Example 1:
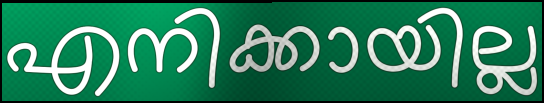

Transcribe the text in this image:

എനിക്കായില്ല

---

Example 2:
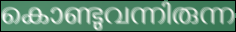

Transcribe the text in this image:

കൊണ്ടുവന്നിരുന്ന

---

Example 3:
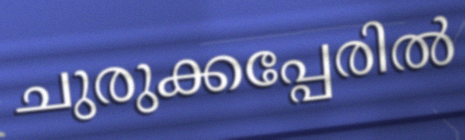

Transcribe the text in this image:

ചുരുക്കപ്പേരിൽ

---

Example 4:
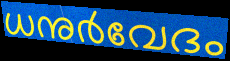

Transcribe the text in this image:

ധനുർവേദം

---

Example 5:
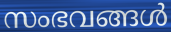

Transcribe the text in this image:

സംഭവങ്ങൾ